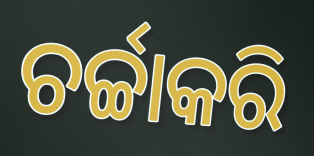
ଚର୍ଚ୍ଚାକରି